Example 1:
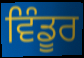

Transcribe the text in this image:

ਵਿੰਡੂਰ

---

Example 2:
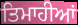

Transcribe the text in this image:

ਤਿਮਾਹੀਆਂ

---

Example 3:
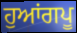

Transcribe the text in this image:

ਹੁਆਂਗਪੂ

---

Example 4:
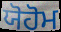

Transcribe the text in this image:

ਯੋਹੋਮ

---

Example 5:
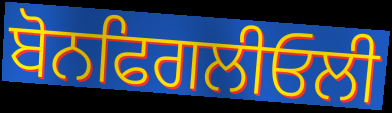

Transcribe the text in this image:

ਬੋਨਫਿਗਲੀਓਲੀ